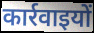
कार्रवाइयों